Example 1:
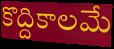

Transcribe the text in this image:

కొద్దికాలమే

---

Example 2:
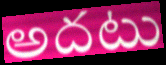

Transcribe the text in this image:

అదటు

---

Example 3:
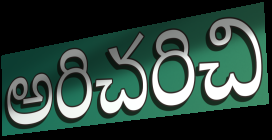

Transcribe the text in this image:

అరిచరిచి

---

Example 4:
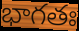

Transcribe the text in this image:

భాగతః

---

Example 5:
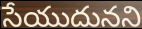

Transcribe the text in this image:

సేయుదునని